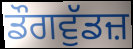
ਡੌਗਵੁੱਡਜ਼